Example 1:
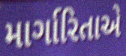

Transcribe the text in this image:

માર્ગારિતાએ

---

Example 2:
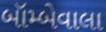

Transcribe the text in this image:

બૉમ્બેવાલા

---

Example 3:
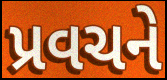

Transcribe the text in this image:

પ્રવચને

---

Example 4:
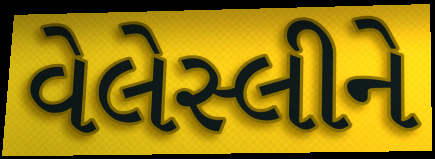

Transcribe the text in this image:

વેલેસ્લીને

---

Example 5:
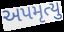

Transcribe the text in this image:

અપમૃત્યુ